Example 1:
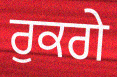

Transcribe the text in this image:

ਰੁਕਗੇ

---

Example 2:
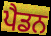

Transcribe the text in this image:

ਪੈਡਨ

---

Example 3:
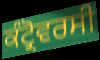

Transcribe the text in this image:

ਕੰਟ੍ਰੋਵਰਸੀ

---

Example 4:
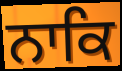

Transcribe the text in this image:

ਨਾਕਿ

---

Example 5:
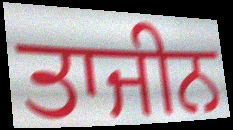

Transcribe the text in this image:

ਤਾਜੀਨ